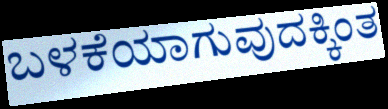
ಬಳಕೆಯಾಗುವುದಕ್ಕಿಂತ